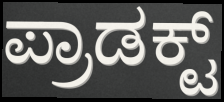
ಪ್ರಾಡಕ್ಟ್